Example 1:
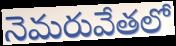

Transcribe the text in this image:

నెమరువేతలో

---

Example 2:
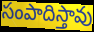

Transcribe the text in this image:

సంపాదిస్తావు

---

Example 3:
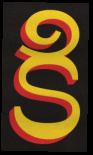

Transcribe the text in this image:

కి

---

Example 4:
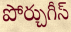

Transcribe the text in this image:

పోర్చుగీస్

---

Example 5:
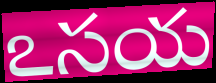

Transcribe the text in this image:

ఽసయ